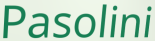
Pasolini